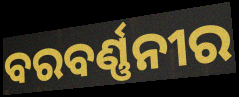
ବରବର୍ଣ୍ଣନୀର